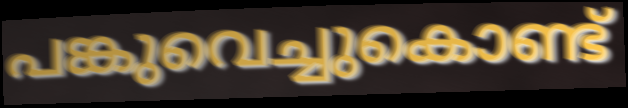
പങ്കുവെച്ചുകൊണ്ട്